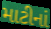
માટીનાં